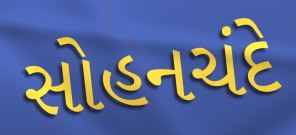
સોહનચંદે